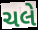
ચલે